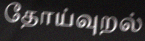
தோய்வுறல்